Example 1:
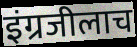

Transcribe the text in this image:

इंग्रजीलाच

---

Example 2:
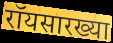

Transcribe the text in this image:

रॉयसारख्या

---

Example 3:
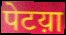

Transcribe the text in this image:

पेटय़ा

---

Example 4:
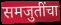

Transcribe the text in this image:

समजुतींचा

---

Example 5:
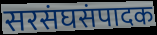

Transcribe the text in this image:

सरसंघसंपादक